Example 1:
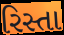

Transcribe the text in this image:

રિસ્તા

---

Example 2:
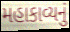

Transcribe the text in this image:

મહાકાવ્યનું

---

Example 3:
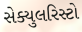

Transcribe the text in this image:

સેક્યુલરિસ્ટો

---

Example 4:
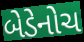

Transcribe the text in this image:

બેડેનોચ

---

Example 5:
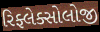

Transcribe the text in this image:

રિફ્લેક્સોલોજી